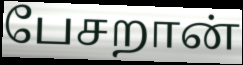
பேசறான்